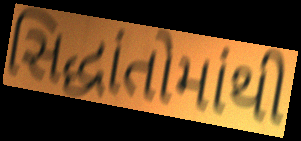
સિદ્ધાંતોમાંથી